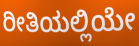
ರೀತಿಯಲ್ಲಿಯೇ